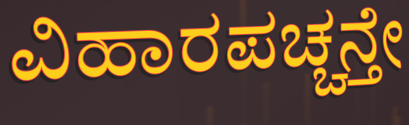
ವಿಹಾರಪಚ್ಚನ್ತೇ